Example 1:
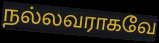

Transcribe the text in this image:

நல்லவராகவே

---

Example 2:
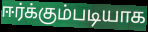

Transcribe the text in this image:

ஈர்க்கும்படியாக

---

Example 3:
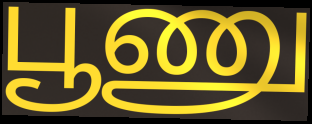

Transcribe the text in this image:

பூணு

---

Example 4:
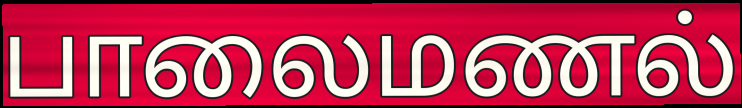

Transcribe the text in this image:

பாலைமணல்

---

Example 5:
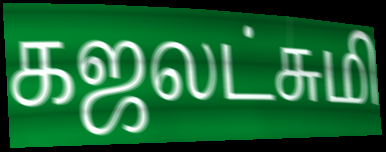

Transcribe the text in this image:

கஜலட்சுமி